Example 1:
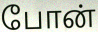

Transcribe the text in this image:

போன்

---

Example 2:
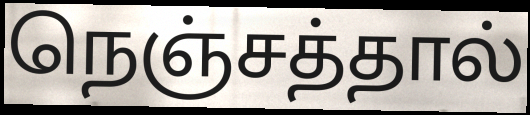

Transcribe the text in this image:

நெஞ்சத்தால்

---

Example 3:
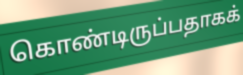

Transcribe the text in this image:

கொண்டிருப்பதாகக்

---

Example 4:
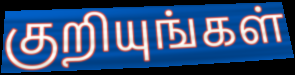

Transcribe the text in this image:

குறியுங்கள்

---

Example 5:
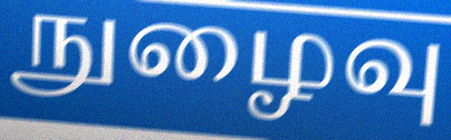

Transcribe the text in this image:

நுழைவு